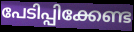
പേടിപ്പിക്കേണ്ട